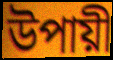
উপায়ী